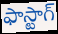
ఫాస్టాగ్